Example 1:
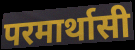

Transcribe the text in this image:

परमार्थासी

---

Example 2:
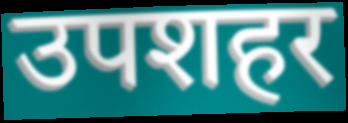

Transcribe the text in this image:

उपशहर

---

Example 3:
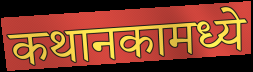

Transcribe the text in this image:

कथानकामध्ये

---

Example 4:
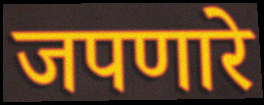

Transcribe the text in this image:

जपणारे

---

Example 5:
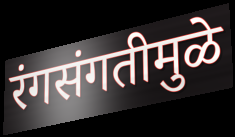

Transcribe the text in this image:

रंगसंगतीमुळे